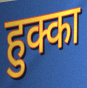
हुक्का